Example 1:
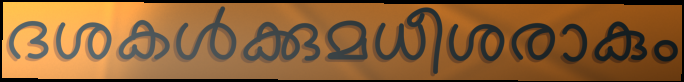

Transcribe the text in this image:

ദശകൾക്കുമധീശരാകും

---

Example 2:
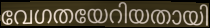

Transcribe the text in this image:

വേഗതയേറിയതായി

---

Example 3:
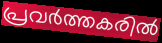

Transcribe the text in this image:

പ്രവർത്തകരിൽ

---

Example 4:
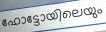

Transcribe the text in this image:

ഫോട്ടോയിലെയും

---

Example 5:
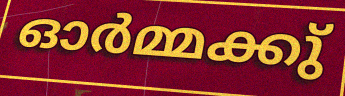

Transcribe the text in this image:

ഓർമ്മക്കു്